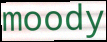
moody